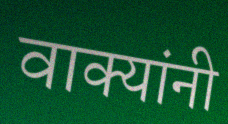
वाक्यांनी